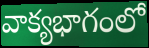
వాక్యభాగంలో